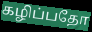
கழிப்பதோ